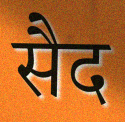
सैद